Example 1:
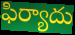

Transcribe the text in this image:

ఫిర్యాదు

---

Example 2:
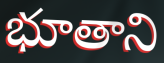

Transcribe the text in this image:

భూతాని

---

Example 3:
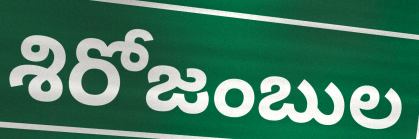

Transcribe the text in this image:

శిరోజంబుల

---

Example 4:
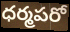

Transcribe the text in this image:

ధర్మపరో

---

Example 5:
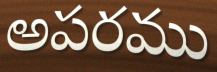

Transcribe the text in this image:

అపరము